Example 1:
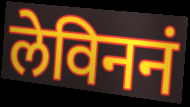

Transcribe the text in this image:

लेविननं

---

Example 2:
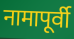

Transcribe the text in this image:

नामापूर्वी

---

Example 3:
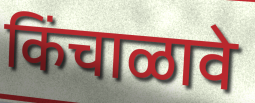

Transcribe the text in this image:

किंचाळावे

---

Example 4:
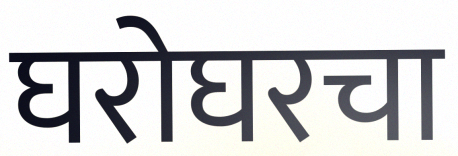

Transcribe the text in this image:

घरोघरचा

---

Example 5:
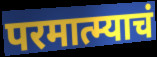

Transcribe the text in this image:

परमात्म्याचं